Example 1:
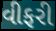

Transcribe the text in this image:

વીફરી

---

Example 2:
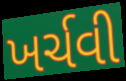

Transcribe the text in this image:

ખર્ચવી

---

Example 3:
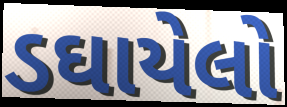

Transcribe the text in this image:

ડઘાયેલો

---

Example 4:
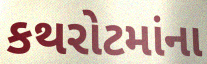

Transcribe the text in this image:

કથરોટમાંના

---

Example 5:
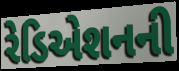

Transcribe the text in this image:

રેડિએશનની